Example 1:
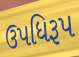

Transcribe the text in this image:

ઉપધિરૂપ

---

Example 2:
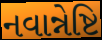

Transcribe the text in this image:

નવાન્નેષ્ટિ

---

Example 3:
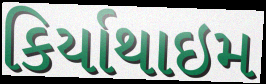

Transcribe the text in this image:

કિર્યાથાઇમ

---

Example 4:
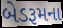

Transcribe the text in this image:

બેડરૂમના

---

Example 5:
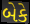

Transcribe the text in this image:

બેકે